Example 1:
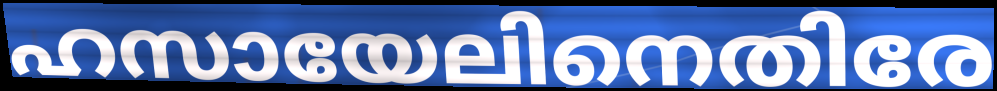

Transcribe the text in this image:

ഹസായേലിനെതിരേ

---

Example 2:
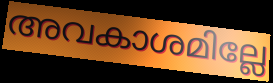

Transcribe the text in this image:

അവകാശമില്ലേ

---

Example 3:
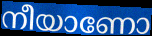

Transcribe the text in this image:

നീയാണോ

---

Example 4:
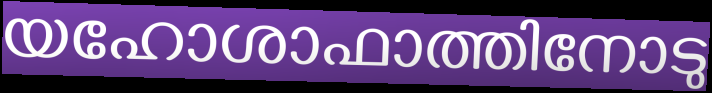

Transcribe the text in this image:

യഹോശാഫാത്തിനോടു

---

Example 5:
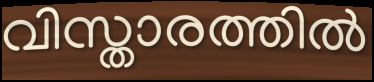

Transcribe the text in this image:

വിസ്താരത്തിൽ